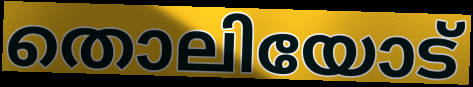
തൊലിയോട്